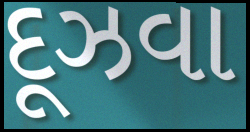
દૂઝવા